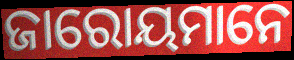
ଜାରୋୟମାନେ